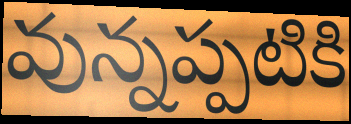
వున్నప్పటికి